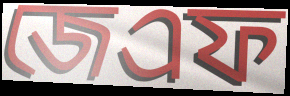
জেএফ